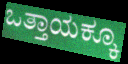
ಒತ್ತಾಯಕ್ಕೂ